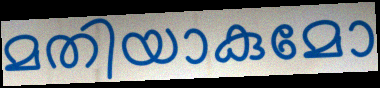
മതിയാകുമോ